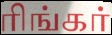
ரிங்கர்